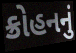
ક્રોહનનું